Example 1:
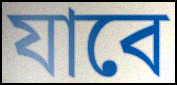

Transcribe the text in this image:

যাবে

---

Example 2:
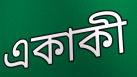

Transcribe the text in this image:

একাকী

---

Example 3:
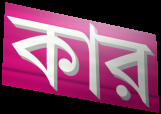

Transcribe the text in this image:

কার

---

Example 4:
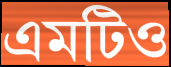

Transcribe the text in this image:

এমটিও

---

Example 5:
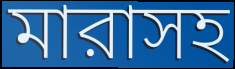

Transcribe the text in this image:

মারাসহ